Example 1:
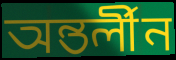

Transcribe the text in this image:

অন্তর্লীন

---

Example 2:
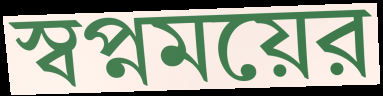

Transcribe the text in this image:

স্বপ্নময়ের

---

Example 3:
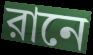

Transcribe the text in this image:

রানে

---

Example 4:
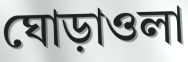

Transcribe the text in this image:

ঘোড়াওলা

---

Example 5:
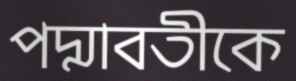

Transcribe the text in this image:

পদ্মাবতীকে